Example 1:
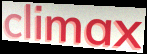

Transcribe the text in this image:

climax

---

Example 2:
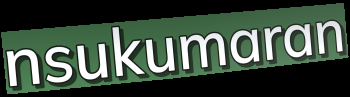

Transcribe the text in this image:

nsukumaran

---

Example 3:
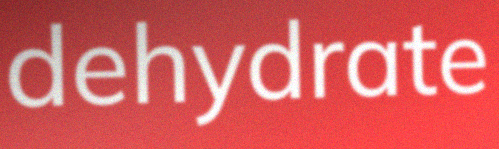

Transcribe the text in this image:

dehydrate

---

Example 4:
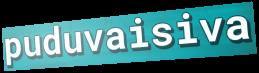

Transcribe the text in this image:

puduvaisiva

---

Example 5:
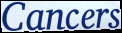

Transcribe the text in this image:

Cancers